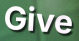
Give